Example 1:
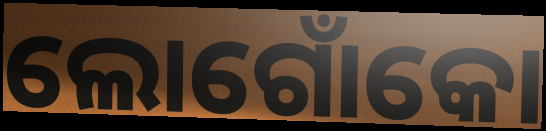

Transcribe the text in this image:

ଲୋଗୋଁକୋ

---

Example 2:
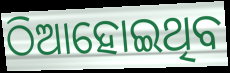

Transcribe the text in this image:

ଠିଆହୋଇଥିବ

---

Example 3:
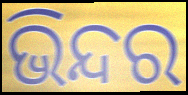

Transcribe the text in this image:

ଭିନ୍ଦର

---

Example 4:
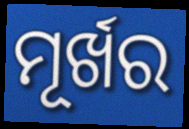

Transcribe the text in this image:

ମୂର୍ଖର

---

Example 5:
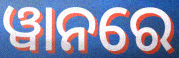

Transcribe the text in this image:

ୱାନରେ